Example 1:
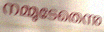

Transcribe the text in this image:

നമ്മുടേതെന്നു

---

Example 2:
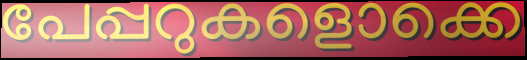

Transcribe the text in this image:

പേപ്പറുകളൊക്കെ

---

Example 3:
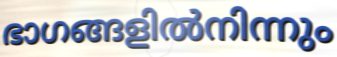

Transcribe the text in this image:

ഭാഗങ്ങളിൽനിന്നും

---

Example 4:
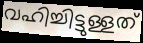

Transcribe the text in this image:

വഹിച്ചിട്ടുള്ളത്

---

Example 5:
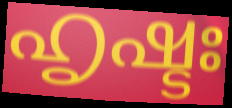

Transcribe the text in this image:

ഹൃഷ്ടഃ